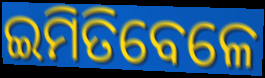
ଇମିତିବେଳେ